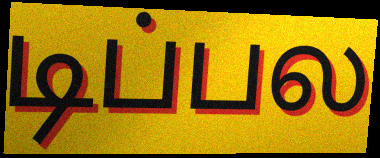
டிப்பல